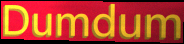
Dumdum